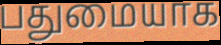
பதுமையாக